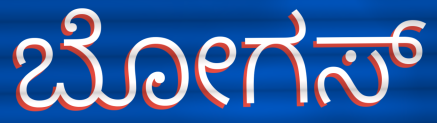
ಬೋಗಸ್